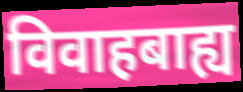
विवाहबाह्य